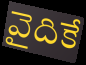
వైదికే